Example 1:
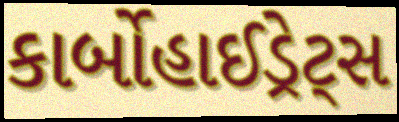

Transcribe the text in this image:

કાર્બોહાઈડ્રેટ્સ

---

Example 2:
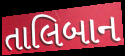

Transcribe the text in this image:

તાલિબાન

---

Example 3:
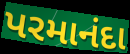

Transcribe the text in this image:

પરમાનંદા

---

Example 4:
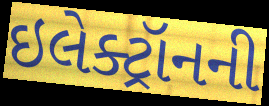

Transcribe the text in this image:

ઇલેક્ટ્રૉનની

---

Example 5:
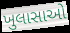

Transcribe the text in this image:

ખુલાસાઓ